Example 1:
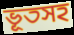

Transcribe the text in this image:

ভূতসহ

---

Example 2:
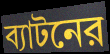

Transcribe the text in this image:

ব্যাটনের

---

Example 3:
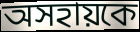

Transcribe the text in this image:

অসহায়কে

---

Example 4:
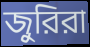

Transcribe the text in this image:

জুরিরা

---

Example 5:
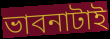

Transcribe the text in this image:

ভাবনাটাই